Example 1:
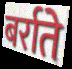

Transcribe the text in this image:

बर्राते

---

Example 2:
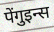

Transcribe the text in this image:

पेंगुइन्स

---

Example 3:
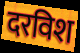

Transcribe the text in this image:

दरविश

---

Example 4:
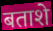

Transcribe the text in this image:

बताशे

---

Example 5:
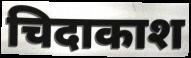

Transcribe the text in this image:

चिदाकाश